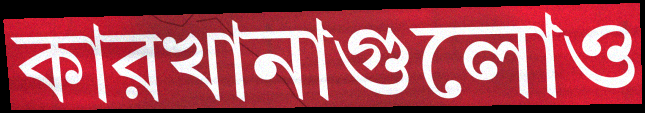
কারখানাগুলোও